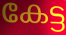
കേട്ട